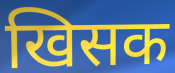
खिसक